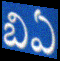
బిఏ